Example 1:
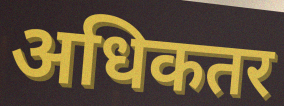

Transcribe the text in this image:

अधिकतर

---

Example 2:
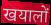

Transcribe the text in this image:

खयालों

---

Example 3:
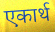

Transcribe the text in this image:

एकार्थ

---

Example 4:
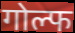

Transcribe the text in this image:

गोल्फ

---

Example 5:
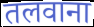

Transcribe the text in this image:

तलवाना